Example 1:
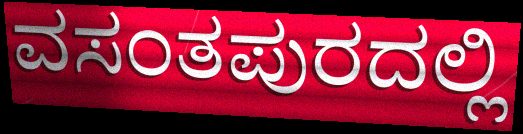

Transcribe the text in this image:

ವಸಂತಪುರದಲ್ಲಿ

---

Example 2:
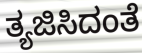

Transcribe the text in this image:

ತ್ಯಜಿಸಿದಂತೆ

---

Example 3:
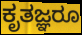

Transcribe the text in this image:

ಕೃತಜ್ಞರೂ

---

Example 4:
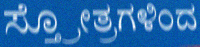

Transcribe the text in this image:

ಸ್ತ್ರೋತ್ರಗಳಿಂದ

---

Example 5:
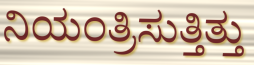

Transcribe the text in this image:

ನಿಯಂತ್ರಿಸುತ್ತಿತ್ತು